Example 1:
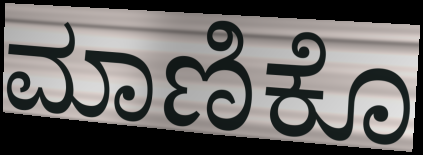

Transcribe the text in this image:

ಮಾಣಿಕೊ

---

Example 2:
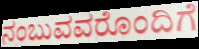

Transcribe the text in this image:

ನಂಬುವವರೊಂದಿಗೆ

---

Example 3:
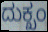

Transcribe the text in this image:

ದುಕ್ಖಂ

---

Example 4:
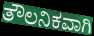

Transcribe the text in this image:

ತೌಲನಿಕವಾಗಿ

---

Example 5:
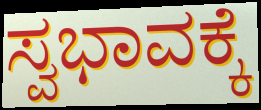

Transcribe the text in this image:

ಸ್ವಭಾವಕ್ಕೆ